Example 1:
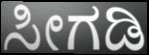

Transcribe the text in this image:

ಸೀಗಡಿ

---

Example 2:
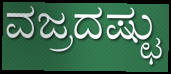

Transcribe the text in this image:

ವಜ್ರದಷ್ಟು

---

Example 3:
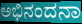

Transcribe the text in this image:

ಅಭಿನಂದನಾ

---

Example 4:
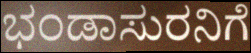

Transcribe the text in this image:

ಭಂಡಾಸುರನಿಗೆ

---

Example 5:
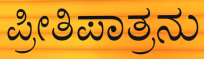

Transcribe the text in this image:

ಪ್ರೀತಿಪಾತ್ರನು